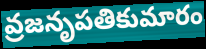
వ్రజనృపతికుమారం